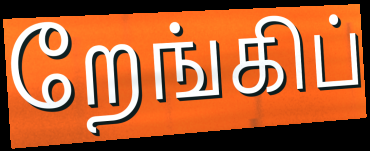
றேங்கிப்